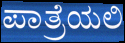
ಪಾತ್ರೆಯಲಿ